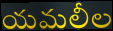
యమలీల